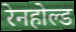
रेनहोल्ड